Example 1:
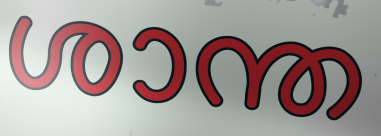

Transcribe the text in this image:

ശാന്ത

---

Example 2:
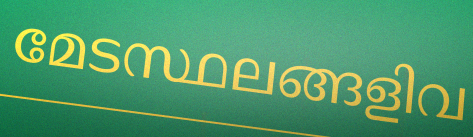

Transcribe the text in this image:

മേടസ്ഥലങ്ങളിവ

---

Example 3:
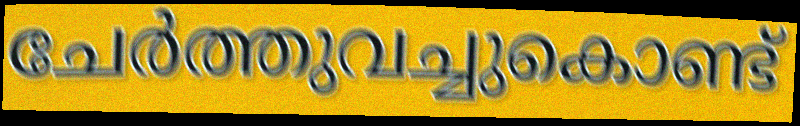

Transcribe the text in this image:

ചേർത്തുവച്ചുകൊണ്ട്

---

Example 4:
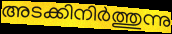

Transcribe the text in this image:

അടക്കിനിർത്തുന്നു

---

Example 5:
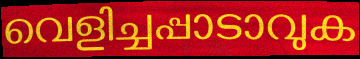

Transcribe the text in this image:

വെളിച്ചപ്പാടാവുക